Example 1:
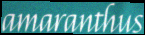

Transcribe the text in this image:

amaranthus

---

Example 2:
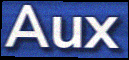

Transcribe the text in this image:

Aux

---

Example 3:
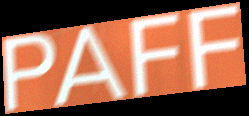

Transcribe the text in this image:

PAFF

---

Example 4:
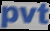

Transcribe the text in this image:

pvt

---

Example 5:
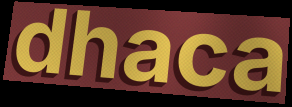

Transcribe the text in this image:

dhaca